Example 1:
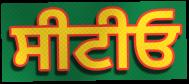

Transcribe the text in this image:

ਸੀਟੀਓ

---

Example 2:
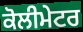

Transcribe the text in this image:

ਕੋਲੀਮੇਟਰ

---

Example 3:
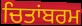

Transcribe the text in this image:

ਚਿਤਾਂਬਰਮ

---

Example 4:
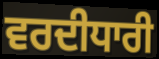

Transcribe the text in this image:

ਵਰਦੀਧਾਰੀ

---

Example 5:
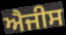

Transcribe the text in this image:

ਐਜੀਸ